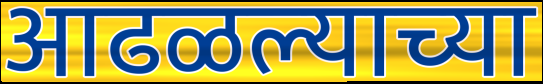
आढळल्याच्या